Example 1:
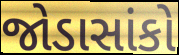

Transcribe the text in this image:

જોડાસાંકો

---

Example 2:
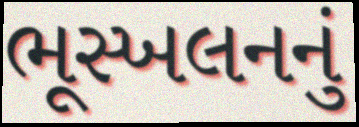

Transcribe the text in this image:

ભૂસ્ખલનનું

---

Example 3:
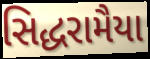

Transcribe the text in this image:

સિદ્ધરામૈયા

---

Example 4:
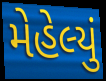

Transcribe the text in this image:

મેહેલ્યું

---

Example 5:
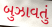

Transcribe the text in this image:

બુઝાવતું